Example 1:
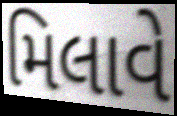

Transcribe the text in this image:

મિલાવે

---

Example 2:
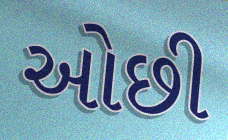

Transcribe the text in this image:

ઓછી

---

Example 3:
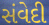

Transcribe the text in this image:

સંવેદી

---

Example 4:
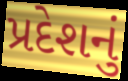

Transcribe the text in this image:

પ્રદેશનું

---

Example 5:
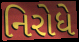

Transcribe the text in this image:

નિરોધે